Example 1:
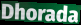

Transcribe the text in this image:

Dhorada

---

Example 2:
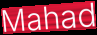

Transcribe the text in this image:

Mahad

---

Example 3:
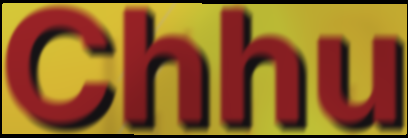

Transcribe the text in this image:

Chhu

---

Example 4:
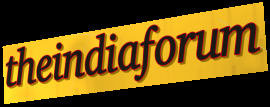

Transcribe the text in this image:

theindiaforum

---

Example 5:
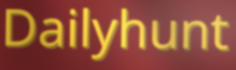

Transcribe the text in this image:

Dailyhunt